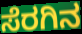
ಸೆರಗಿನ